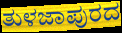
ತುಳಜಾಪುರದ